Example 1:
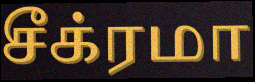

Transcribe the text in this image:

சீக்ரமா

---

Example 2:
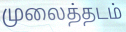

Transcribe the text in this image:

முலைத்தடம்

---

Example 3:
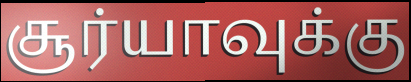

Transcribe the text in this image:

சூர்யாவுக்கு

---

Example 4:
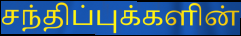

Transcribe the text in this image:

சந்திப்புக்களின்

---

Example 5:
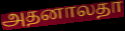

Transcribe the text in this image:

அதனாலதா